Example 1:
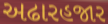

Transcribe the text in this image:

અઢારહજાર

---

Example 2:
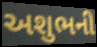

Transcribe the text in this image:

અશુભની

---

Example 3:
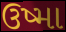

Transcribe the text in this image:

ઉષ્મા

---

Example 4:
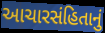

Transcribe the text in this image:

આચારસંહિતાનું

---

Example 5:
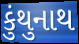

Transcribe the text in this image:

કુંથુનાથ